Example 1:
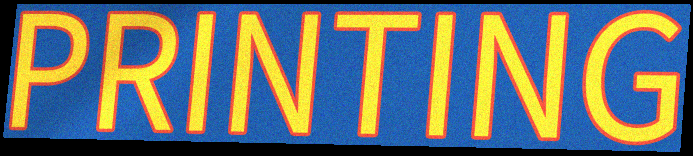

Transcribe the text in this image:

PRINTING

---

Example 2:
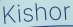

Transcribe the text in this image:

Kishor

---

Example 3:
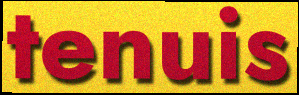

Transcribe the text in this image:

tenuis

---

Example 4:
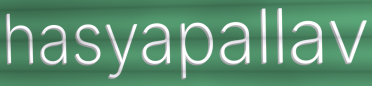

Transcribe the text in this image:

hasyapallav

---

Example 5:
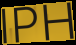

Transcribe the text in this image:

IPH